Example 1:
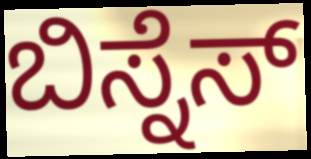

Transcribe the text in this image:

ಬಿಸ್ನೆಸ್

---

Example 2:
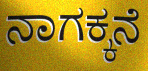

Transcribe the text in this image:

ನಾಗಕ್ಕನೆ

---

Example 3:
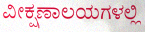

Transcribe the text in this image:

ವೀಕ್ಷಣಾಲಯಗಳಲ್ಲಿ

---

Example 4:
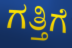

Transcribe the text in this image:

ಗತ್ತಿಗೆ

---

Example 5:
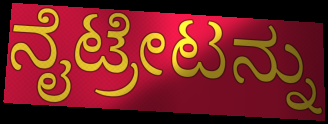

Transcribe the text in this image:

ನೈಟ್ರೇಟನ್ನು